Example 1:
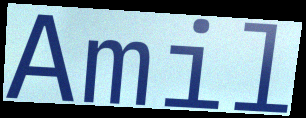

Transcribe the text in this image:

Amil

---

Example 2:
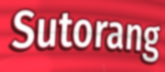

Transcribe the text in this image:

Sutorang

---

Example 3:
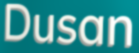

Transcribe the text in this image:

Dusan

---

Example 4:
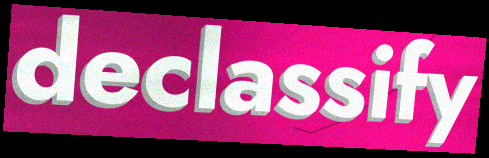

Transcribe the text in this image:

declassify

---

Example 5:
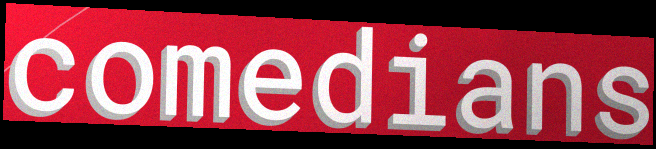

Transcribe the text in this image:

comedians